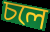
চলে